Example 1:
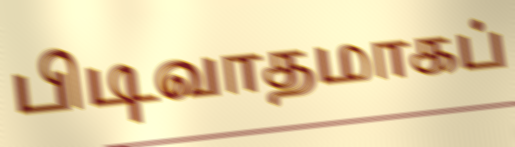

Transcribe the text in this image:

பிடிவாதமாகப்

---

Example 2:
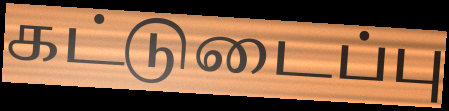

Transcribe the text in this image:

கட்டுடைப்பு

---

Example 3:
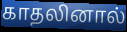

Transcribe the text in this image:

காதலினால்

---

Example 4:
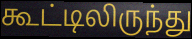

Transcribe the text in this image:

கூட்டிலிருந்து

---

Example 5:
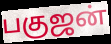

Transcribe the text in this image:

பகுஜன்